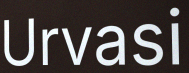
Urvasi